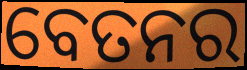
ବେତନର